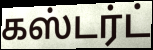
கஸ்டர்ட்